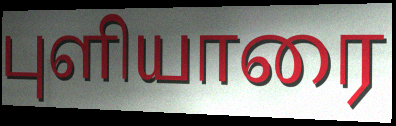
புளியாரை